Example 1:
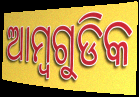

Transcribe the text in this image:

ଆମ୍ବଗୁଡିକ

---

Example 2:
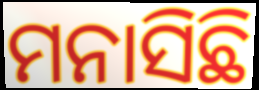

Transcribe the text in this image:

ମନାସିଛି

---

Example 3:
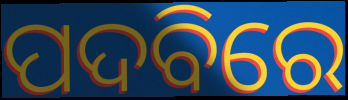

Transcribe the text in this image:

ପଦବିରେ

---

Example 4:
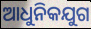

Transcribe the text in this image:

ଆଧୁନିକଯୁଗ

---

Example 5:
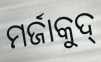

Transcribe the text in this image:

ମର୍ଜାକୁଦ୍